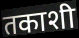
तकाशी